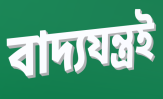
বাদ্যযন্ত্ৰই